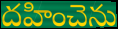
దహించెను